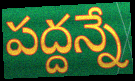
పద్దన్నే